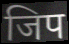
जिप